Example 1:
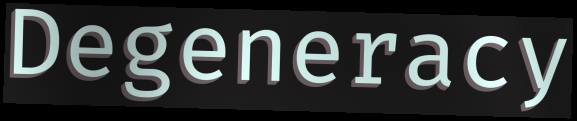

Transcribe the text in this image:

Degeneracy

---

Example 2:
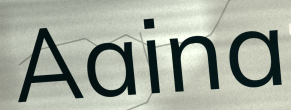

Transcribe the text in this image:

Aaina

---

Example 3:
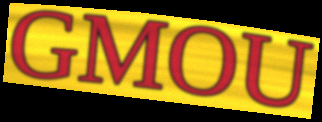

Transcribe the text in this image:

GMOU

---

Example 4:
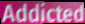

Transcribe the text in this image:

Addicted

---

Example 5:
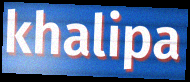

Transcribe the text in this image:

khalipa